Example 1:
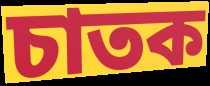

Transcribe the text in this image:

চাতক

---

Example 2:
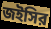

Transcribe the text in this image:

জইসির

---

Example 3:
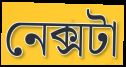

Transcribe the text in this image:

নেক্সটা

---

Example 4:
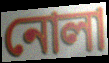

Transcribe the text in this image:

নোলা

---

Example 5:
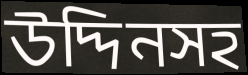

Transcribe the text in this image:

উদ্দিনসহ